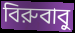
বিরুবাবু